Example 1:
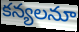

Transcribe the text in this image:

కన్యలనూ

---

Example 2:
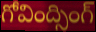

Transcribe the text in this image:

గోవింద్సింగ్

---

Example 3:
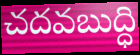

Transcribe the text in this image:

చదవబుద్ధి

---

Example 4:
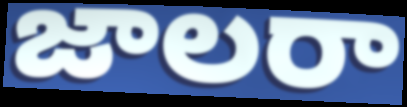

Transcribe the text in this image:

జాలరా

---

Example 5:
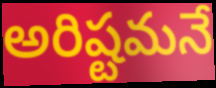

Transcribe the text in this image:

అరిష్టమనే